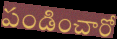
పండించారో